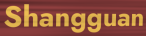
Shangguan